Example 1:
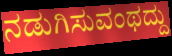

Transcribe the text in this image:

ನಡುಗಿಸುವಂಥದ್ದು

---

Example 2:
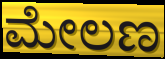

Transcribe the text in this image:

ಮೇಲಣ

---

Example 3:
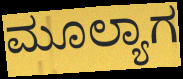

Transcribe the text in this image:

ಮೂಲ್ಯಾಗ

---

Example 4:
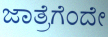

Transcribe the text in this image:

ಜಾತ್ರೆಗೆಂದೇ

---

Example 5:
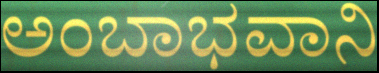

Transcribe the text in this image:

ಅಂಬಾಭವಾನಿ